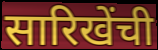
सारिखेंची